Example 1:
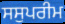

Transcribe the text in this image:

ਸਸੁਪਰੀਮ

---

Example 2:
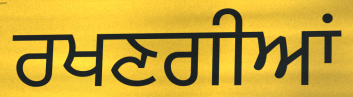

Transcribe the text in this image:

ਰਖਣਗੀਆਂ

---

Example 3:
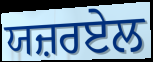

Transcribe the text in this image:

ਯਜ਼ਰਏਲ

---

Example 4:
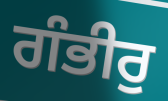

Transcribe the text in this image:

ਗੰਭੀਰੁ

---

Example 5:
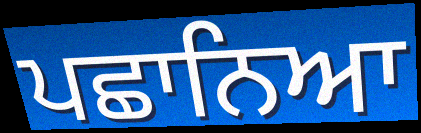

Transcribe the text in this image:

ਪਛਾਨਿਆ